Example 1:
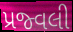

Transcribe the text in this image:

પ્રજ્વલી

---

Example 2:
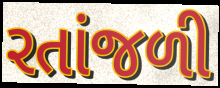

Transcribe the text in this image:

રતાંજળી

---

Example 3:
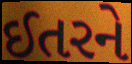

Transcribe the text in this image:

ઈતરને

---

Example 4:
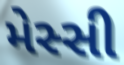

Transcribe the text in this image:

મેસ્સી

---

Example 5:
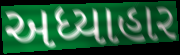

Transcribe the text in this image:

અધ્યાહાર